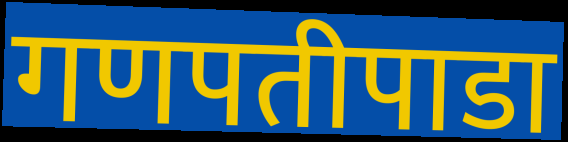
गणपतीपाडा